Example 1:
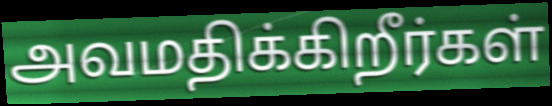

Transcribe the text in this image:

அவமதிக்கிறீர்கள்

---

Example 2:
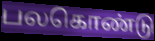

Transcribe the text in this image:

பலகொண்டு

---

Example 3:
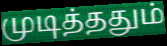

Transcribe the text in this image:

முடித்ததும்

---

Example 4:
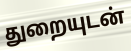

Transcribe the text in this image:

துறையுடன்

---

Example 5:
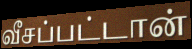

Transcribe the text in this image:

வீசப்பட்டான்